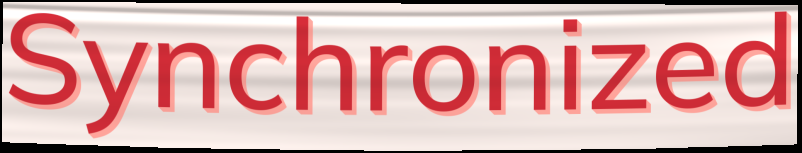
Synchronized